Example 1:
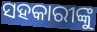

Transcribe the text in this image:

ସହକାରୀଙ୍କୁ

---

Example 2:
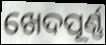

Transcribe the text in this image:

ଖେଦପୂର୍ଣ୍ଣ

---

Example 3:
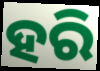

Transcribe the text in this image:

ହରି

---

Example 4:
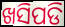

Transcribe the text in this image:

ଖସିପଡି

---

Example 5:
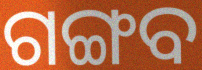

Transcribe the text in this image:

ଗଙ୍ଗବ